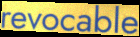
revocable